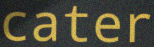
cater